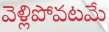
వెళ్లిపోవటమే